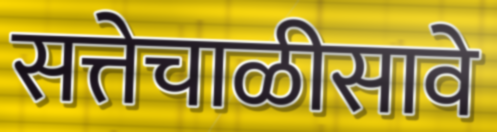
सत्तेचाळीसावे